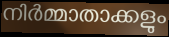
നിർമ്മാതാക്കളും